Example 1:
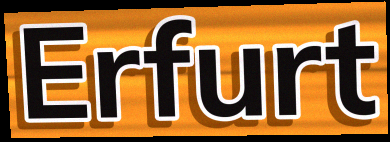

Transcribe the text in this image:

Erfurt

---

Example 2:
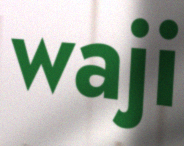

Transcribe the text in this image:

waji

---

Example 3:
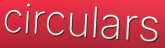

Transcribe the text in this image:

circulars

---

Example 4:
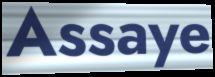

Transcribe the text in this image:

Assaye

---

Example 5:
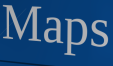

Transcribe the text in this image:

Maps